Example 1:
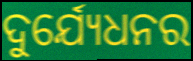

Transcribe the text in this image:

ଦୁର୍ଯ୍ୟେଧନର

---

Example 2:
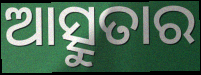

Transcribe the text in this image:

ଆତ୍ସୁତାର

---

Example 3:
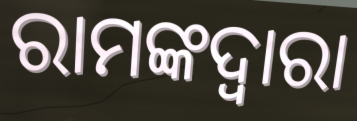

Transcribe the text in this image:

ରାମଙ୍କଦ୍ଵାରା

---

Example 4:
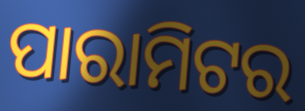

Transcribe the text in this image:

ପାରାମିଟର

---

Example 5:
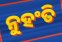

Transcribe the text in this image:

ନୁହଂତି